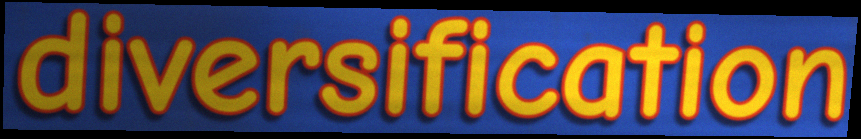
diversification